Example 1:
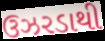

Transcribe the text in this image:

ઉઝરડાથી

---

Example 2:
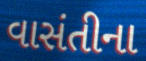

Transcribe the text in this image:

વાસંતીના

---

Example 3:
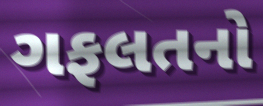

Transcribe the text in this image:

ગફલતનો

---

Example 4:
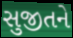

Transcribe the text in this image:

સુજીતને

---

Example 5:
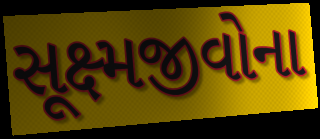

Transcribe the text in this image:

સૂક્ષ્મજીવોના